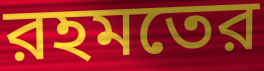
রহমতের